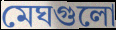
মেঘগুলো